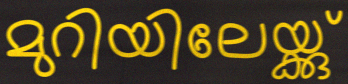
മുറിയിലേയ്ക്കു്